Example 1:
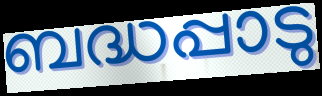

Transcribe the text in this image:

ബദ്ധപ്പാടു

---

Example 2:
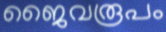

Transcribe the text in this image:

ജൈവരൂപം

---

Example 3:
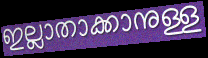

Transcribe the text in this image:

ഇല്ലാതാക്കാനുള്ള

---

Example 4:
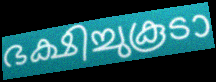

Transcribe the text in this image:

ഭക്ഷിച്ചുകൂടാ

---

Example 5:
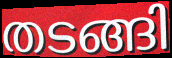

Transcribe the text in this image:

തടങ്ങി